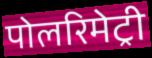
पोलरिमेट्री